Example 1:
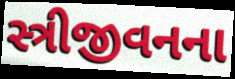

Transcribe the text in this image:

સ્ત્રીજીવનના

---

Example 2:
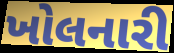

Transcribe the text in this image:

ખોલનારી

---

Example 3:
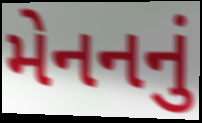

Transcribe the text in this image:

મેનનનું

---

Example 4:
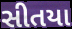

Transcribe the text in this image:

સીતયા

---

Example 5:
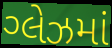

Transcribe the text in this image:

ગ્લેઝમાં